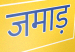
जमाड़